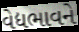
વેદ્યભાવને